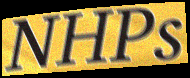
NHPs